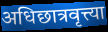
अधिछात्रवृत्त्या